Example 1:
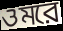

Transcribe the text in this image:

ওমরে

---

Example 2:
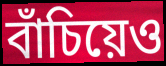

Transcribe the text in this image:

বাঁচিয়েও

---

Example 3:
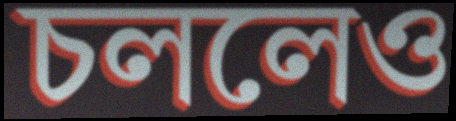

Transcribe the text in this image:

চললেও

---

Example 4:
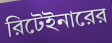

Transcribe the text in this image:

রিটেইনারের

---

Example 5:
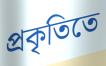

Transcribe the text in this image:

প্রকৃতিতে